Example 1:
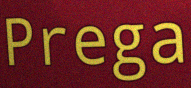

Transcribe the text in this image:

Prega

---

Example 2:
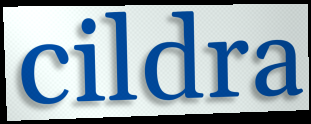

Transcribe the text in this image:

cildra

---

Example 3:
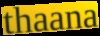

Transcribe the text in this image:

thaana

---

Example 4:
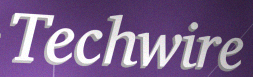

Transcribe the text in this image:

Techwire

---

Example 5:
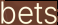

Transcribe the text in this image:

bets